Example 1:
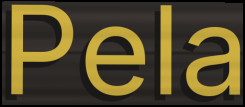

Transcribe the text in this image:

Pela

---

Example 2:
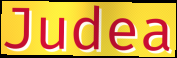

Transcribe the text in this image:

Judea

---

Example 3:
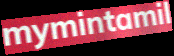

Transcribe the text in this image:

mymintamil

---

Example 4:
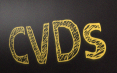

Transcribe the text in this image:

CVDs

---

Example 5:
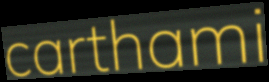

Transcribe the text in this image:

carthami